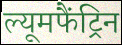
ल्यूमफैंट्रिन